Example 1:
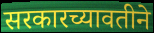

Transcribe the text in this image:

सरकारच्यावतीने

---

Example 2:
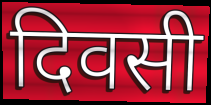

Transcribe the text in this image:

दिवसी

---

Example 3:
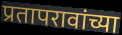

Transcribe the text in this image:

प्रतापरावांच्या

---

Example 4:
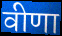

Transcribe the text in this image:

वीणा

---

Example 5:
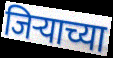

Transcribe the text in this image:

जिऱ्याच्या